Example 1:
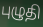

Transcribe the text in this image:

புழுதி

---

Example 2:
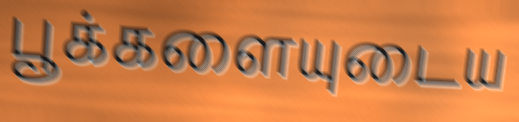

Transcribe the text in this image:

பூக்களையுடைய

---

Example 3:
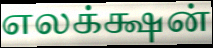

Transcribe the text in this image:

எலக்க்ஷன்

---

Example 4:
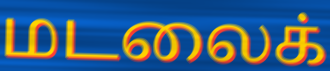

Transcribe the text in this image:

மடலைக்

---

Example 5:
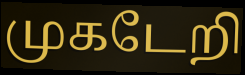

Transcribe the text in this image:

முகடேறி